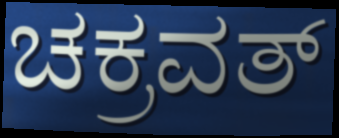
ಚಕ್ರವತ್